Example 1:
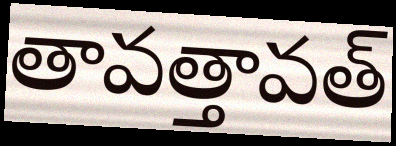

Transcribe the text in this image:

తావత్తావత్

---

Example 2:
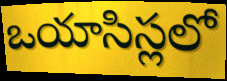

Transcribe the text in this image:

ఒయాసిస్లలో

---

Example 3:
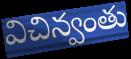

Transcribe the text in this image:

విచిన్వంతు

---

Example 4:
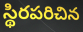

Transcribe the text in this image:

స్థిరపరిచిన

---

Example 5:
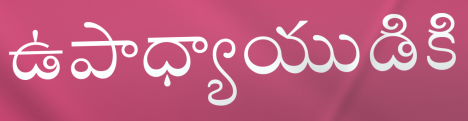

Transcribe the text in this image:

ఉపాధ్యాయుడికి